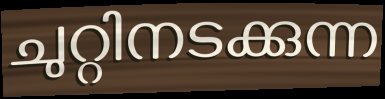
ചുറ്റിനടക്കുന്ന